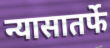
न्यासातर्फे